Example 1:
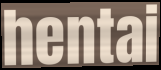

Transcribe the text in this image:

hentai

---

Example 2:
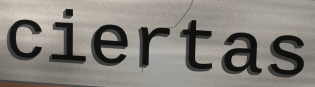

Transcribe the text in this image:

ciertas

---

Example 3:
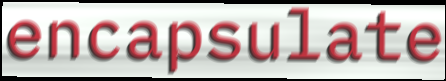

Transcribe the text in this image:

encapsulate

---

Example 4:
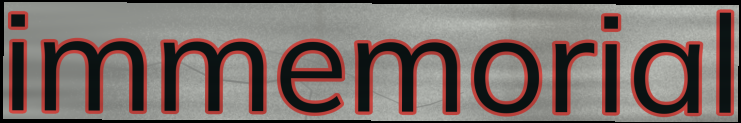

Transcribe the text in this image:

immemorial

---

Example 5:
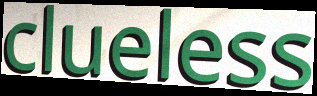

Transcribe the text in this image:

clueless